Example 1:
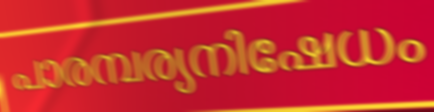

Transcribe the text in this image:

പാരമ്പര്യനിഷേധം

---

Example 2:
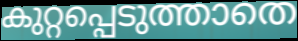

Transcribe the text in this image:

കുറ്റപ്പെടുത്താതെ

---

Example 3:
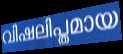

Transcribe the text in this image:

വിഷലിപ്തമായ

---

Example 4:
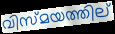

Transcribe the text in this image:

വിസ്മയത്തില്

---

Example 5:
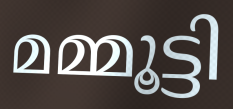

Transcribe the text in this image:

മമ്മൂട്ടി